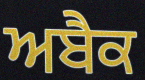
ਅਬੈਕ